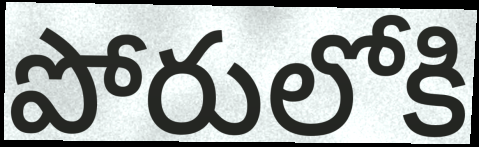
పోరులోకి